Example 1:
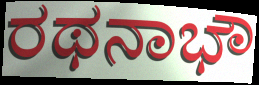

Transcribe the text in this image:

ರಥನಾಭೌ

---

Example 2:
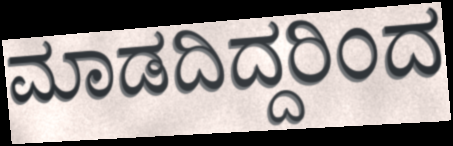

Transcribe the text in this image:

ಮಾಡದಿದ್ದರಿಂದ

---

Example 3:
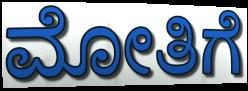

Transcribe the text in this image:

ಮೋತಿಗೆ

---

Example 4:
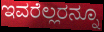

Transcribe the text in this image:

ಇವರೆಲ್ಲರನ್ನೂ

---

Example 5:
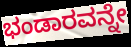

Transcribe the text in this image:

ಭಂಡಾರವನ್ನೇ